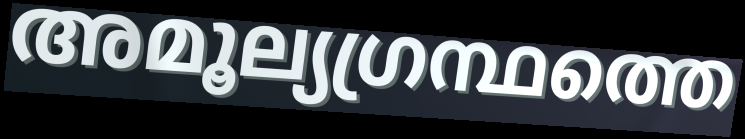
അമൂല്യഗ്രന്ഥത്തെ